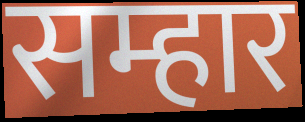
सम्हार